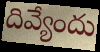
దివ్యేందు